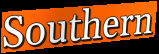
Southern